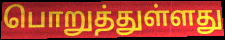
பொறுத்துள்ளது